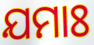
ଯମାଃ